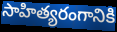
సాహిత్యరంగానికి